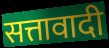
सत्तावादी